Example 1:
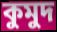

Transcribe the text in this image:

কুমুদ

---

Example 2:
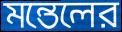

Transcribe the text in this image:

মন্তেলের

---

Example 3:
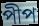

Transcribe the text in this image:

পীপ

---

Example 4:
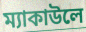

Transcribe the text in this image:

ম্যাকাউলে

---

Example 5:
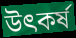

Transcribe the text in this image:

উৎকর্ষ